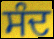
ਸੰਦ